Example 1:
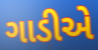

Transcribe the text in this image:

ગાડીએ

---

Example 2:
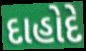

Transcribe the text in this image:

દાહોદે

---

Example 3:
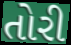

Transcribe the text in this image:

તોરી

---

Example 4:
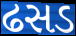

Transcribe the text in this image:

ઢસડ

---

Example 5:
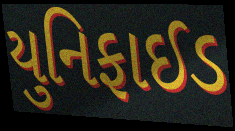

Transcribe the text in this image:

યુનિફાઈડ